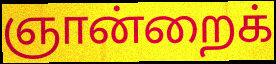
ஞான்றைக்